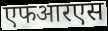
एफआरएस